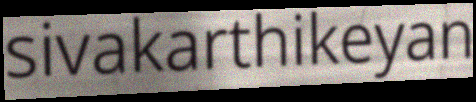
sivakarthikeyan